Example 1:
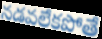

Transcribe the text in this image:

నడవలేకపోతే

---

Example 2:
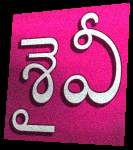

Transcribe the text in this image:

శైవీ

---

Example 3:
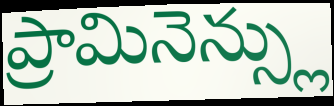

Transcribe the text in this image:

ప్రామినెన్స్లు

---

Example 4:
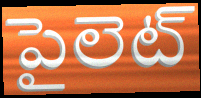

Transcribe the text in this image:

పైలెట్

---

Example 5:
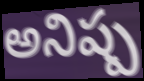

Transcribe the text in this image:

అనిష్ప